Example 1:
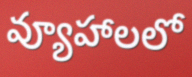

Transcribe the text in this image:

వ్యూహాలలో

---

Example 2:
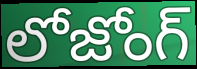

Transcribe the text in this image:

లోజోంగ్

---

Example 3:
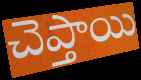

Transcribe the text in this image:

చెప్తాయి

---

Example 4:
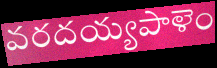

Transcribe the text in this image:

వరదయ్యపాళెం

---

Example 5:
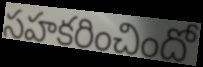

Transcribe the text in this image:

సహకరించిందో